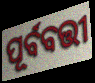
ପୂର୍ବବତ୍ତୀ